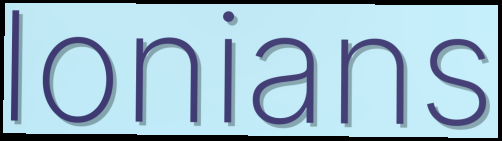
Ionians